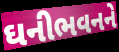
ઘનીભવનને